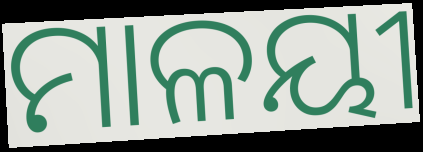
ମାଳୟୀ